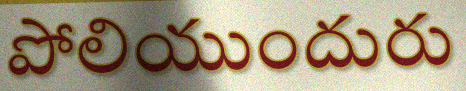
పోలియుందురు